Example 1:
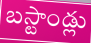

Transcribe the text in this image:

బస్టాండ్లు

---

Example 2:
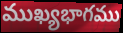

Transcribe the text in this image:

ముఖ్యభాగము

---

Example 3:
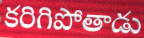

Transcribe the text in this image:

కరిగిపోతాడు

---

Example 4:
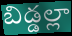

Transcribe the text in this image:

బిడ్డల్లా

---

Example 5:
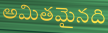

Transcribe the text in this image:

అమితమైనది